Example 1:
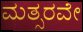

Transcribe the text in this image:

ಮತ್ಸರವೇ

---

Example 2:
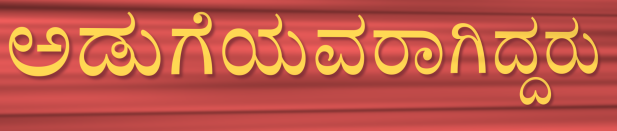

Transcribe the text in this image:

ಅಡುಗೆಯವರಾಗಿದ್ದರು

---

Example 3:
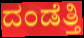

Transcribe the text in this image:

ದಂಡೆತ್ತಿ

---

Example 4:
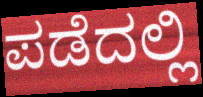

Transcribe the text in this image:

ಪಡೆದಲ್ಲಿ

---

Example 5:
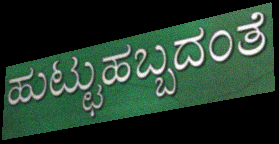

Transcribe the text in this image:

ಹುಟ್ಟುಹಬ್ಬದಂತೆ